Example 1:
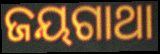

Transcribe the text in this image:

ଜୟଗାଥା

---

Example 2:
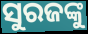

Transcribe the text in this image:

ସୁରଜଙ୍କୁ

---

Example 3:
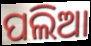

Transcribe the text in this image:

ପଲିଆ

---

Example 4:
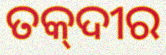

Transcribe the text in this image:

ତକ୍‌ଦୀର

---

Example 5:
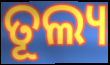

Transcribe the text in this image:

ତୂଲ୍ୟ